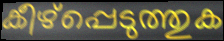
കീഴ്പ്പെടുത്തുക